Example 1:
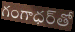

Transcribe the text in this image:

గంగాధర్‌తో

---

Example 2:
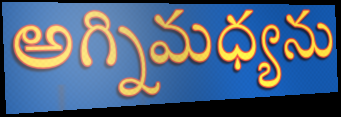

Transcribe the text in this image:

అగ్నిమధ్యను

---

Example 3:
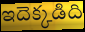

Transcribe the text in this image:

ఇదెక్కడిది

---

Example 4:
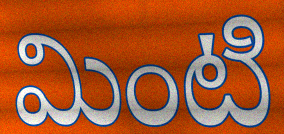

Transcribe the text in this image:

మింటి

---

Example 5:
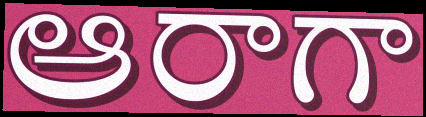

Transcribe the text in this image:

ఆరాగా